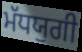
ਮੱਧਯੁਗੀ